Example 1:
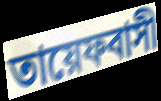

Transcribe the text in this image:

তায়েফবাসী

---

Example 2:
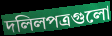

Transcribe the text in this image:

দলিলপত্রগুলো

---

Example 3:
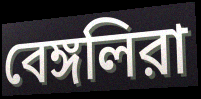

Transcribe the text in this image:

বেঙ্গলিরা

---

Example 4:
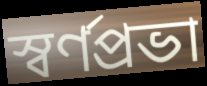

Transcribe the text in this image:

স্বর্ণপ্রভা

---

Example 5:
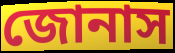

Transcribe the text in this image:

জোনাস